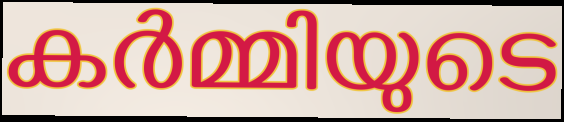
കർമ്മിയുടെ